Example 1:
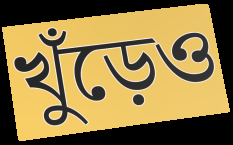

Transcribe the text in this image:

খুঁড়েও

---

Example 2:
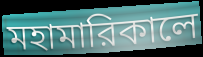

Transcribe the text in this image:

মহামারিকালে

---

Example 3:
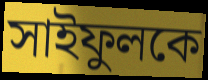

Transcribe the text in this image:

সাইফুলকে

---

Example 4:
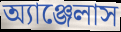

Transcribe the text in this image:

অ্যাঞ্জেলাস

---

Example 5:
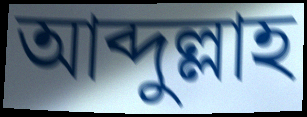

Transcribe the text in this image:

আব্দুল্লাহ